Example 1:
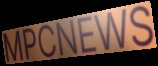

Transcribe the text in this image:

MPCNEWS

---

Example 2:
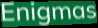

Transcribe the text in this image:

Enigmas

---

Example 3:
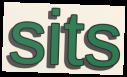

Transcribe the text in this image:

sits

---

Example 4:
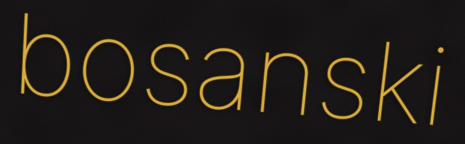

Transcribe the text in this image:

bosanski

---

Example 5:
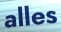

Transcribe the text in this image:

alles